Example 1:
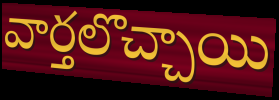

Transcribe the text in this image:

వార్తలొచ్చాయి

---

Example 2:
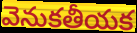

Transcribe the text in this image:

వెనుకతీయక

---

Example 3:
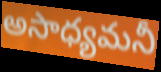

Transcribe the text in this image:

అసాధ్యమనీ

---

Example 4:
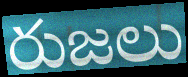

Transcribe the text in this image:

రుజలు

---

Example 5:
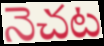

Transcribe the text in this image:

నెచట